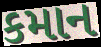
કમાન